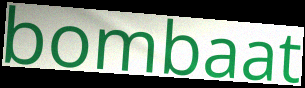
bombaat